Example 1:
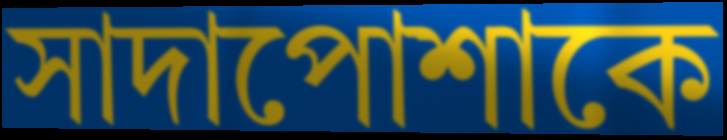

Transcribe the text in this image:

সাদাপোশাকে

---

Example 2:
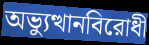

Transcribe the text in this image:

অভ্যুত্থানবিরোধী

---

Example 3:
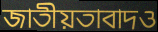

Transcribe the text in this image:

জাতীয়তাবাদও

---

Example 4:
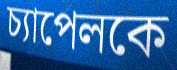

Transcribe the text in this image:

চ্যাপেলকে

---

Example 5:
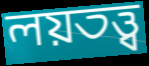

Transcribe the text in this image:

লয়তত্ত্ব